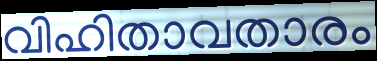
വിഹിതാവതാരം